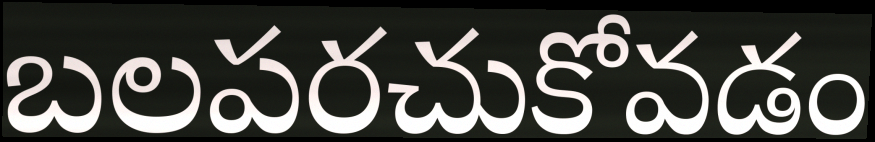
బలపరచుకోవడం